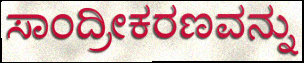
ಸಾಂದ್ರೀಕರಣವನ್ನು